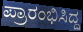
ಪ್ರಾರಂಭಿಸಿದ್ದ